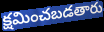
క్షమించబడతారు